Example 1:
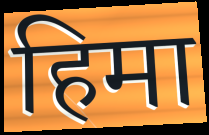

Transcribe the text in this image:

हिमा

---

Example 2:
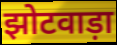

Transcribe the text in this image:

झोटवाड़ा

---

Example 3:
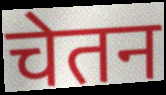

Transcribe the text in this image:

चेतन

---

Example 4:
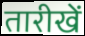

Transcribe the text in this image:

तारीखें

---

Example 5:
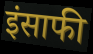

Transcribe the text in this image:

इंसाफी